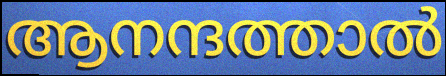
ആനന്ദത്താൽ